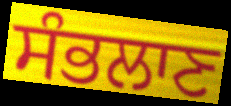
ਸੰਭਲਾਣ